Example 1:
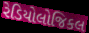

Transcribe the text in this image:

રેડિયોલોજિકલ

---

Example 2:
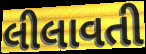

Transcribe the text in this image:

લીલાવતી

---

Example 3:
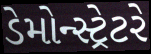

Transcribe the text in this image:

ડેમોન્સ્ટ્રેટરે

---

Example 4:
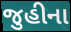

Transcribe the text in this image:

જુહીના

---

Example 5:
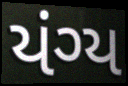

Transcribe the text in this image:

યંગ્ય